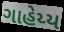
ગાહેય્ય